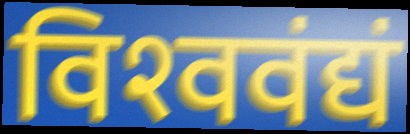
विश्ववंद्यं